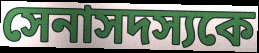
সেনাসদস্যকে